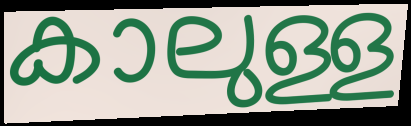
കാലുള്ള